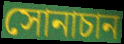
সোনাচান